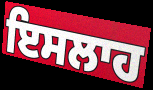
ਇਸਲਾਹ